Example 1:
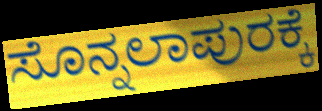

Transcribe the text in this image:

ಸೊನ್ನಲಾಪುರಕ್ಕೆ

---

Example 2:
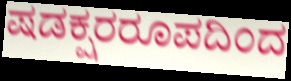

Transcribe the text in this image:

ಷಡಕ್ಷರರೂಪದಿಂದ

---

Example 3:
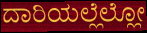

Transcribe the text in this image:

ದಾರಿಯಲ್ಲೆಲ್ಲೋ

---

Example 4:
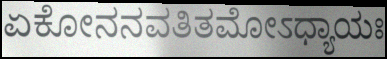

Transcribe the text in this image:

ಏಕೋನನವತಿತಮೋಽಧ್ಯಾಯಃ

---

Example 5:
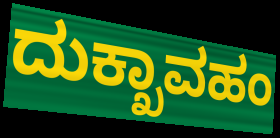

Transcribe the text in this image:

ದುಕ್ಖಾವಹಂ